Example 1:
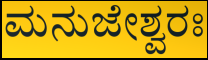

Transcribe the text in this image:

ಮನುಜೇಶ್ವರಃ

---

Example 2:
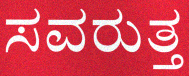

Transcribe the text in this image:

ಸವರುತ್ತ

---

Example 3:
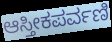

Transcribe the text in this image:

ಆಸ್ತೀಕಪರ್ವಣಿ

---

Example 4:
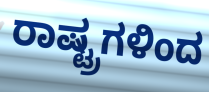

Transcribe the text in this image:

ರಾಷ್ಟ್ರಗಳಿಂದ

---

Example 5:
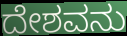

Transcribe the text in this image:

ದೇಶವನು